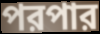
পরপার